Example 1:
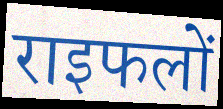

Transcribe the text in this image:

राइफलों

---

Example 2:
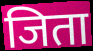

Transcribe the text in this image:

जिता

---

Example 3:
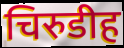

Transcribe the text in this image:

चिरुडीह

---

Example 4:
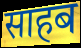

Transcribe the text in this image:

साहब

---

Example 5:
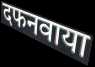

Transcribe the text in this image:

दफनवाया